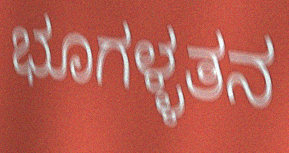
ಭೂಗಳ್ಳತನ